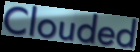
Clouded